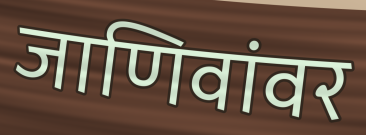
जाणिवांवर